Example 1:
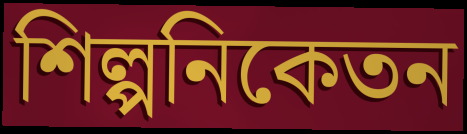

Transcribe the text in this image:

শিল্পনিকেতন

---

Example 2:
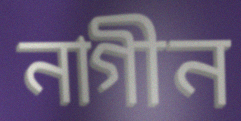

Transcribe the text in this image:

নাগীন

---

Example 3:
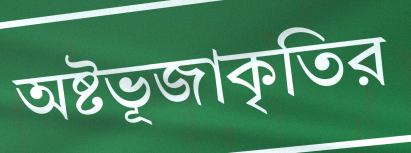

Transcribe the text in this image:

অষ্টভূজাকৃতির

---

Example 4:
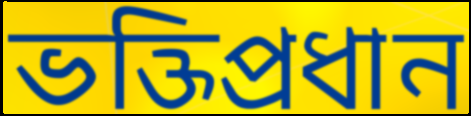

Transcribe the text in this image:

ভক্তিপ্রধান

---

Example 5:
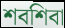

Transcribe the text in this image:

শবশিবা